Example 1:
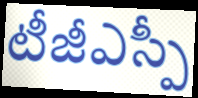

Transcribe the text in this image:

టీజీఎస్పీ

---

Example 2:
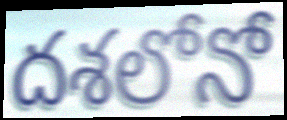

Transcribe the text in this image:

దశలోనో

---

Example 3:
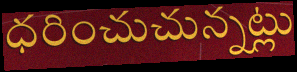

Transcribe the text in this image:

ధరించుచున్నట్లు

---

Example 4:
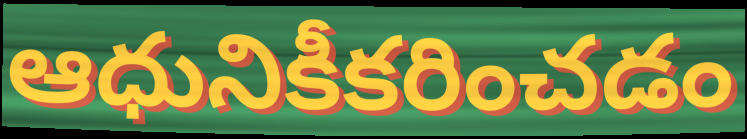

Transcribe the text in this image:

ఆధునికీకరించడం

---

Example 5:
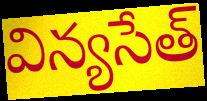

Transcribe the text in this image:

విన్యసేత్